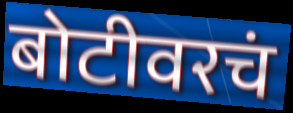
बोटीवरचं